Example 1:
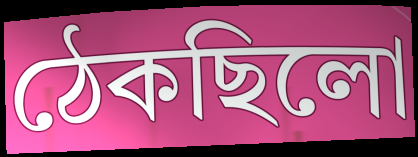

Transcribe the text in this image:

ঠেকছিলো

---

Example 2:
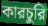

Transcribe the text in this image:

কারচুরি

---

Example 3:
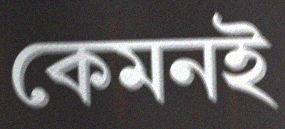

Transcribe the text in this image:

কেমনই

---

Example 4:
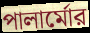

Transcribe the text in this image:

পালার্মোর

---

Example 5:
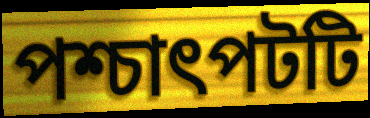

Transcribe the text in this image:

পশ্চাৎপটটি